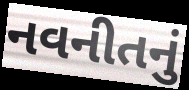
નવનીતનું